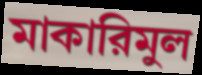
মাকারিমুল